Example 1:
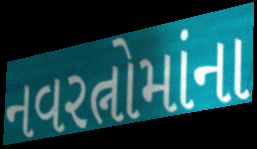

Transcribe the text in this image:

નવરત્નોમાંના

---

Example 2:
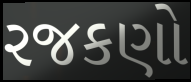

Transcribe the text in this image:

રજકણો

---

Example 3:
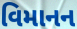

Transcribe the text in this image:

વિમાનન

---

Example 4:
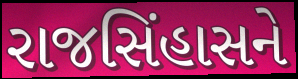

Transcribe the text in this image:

રાજસિંહાસને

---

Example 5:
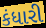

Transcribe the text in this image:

કંધારી